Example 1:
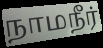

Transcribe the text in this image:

நாமநீர்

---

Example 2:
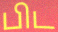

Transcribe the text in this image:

பிட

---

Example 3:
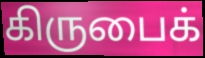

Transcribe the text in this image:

கிருபைக்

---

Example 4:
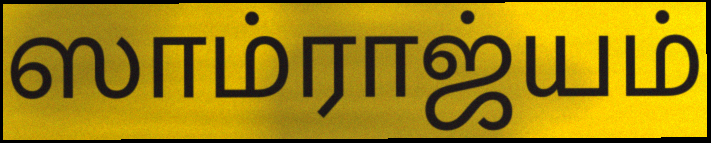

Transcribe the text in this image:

ஸாம்ராஜ்யம்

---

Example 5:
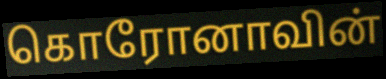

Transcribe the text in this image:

கொரோனாவின்